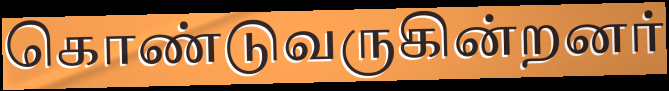
கொண்டுவருகின்றனர்